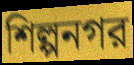
শিল্পনগর